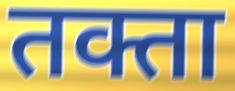
तक्ता